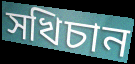
সখিচান